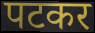
पटकर